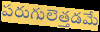
పరుగులెత్తడమే